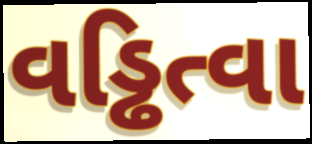
વડ્ઢિત્વા